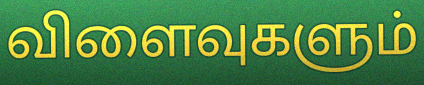
விளைவுகளும்